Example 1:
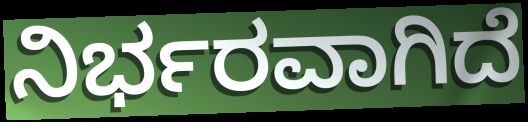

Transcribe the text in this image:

ನಿರ್ಭರವಾಗಿದೆ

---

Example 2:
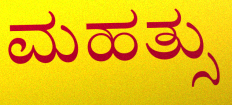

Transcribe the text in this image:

ಮಹತ್ಸು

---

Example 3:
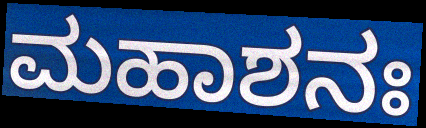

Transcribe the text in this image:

ಮಹಾಶನಃ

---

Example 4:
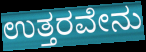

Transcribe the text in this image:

ಉತ್ತರವೇನು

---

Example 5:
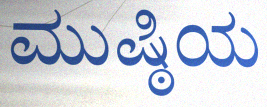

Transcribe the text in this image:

ಮುಷ್ಠಿಯ